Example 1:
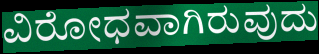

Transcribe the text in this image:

ವಿರೋಧವಾಗಿರುವುದು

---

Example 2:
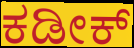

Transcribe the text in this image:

ಕಡೀಕ್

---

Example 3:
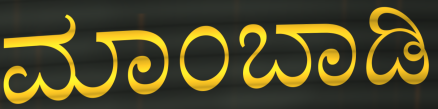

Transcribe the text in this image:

ಮಾಂಬಾಡಿ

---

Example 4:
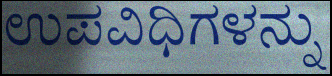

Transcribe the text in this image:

ಉಪವಿಧಿಗಳನ್ನು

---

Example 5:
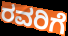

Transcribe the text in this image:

ರವರಿಗೆ